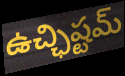
ఉచ్ఛిష్టమ్